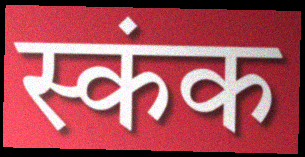
स्कंक